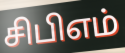
சிபிஎம்